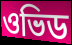
ওভিড